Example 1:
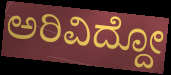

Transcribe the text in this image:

ಅರಿವಿದ್ದೋ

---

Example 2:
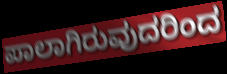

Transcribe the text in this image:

ಪಾಲಾಗಿರುವುದರಿಂದ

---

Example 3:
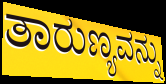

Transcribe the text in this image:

ತಾರುಣ್ಯವನ್ನು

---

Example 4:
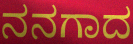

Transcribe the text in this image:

ನನಗಾದ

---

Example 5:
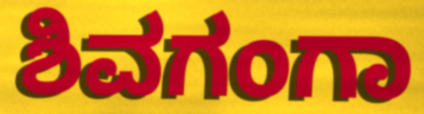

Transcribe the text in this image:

ಶಿವಗಂಗಾ